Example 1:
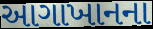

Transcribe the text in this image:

આગાખાનના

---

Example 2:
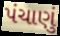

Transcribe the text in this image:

પંચાણું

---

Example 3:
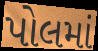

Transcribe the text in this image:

પોલમાં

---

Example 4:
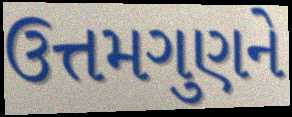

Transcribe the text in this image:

ઉત્તમગુણને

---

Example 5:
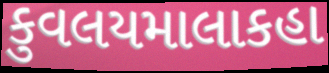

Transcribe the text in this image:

કુવલયમાલાકહા